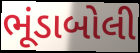
ભૂંડાબોલી